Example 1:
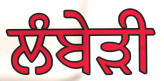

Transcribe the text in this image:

ਲੰਬੇੜੀ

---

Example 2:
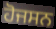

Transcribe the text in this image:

ਹੋਜਸਨ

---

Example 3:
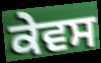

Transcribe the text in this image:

ਕੇਵਸ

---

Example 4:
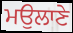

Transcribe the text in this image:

ਮਉਲਾਣੇ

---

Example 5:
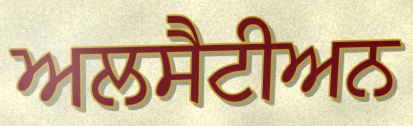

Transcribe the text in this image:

ਅਲਸੈਟੀਅਨ